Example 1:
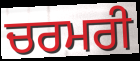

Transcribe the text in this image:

ਚਰਮਰੀ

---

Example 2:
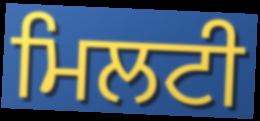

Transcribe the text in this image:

ਮਿਲਟੀ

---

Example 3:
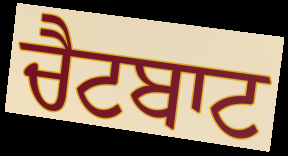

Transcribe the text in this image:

ਚੈਟਬਾਟ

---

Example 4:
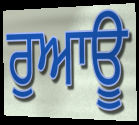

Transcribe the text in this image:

ਰੁਆਊ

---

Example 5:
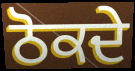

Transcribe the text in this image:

ਠੋਕਦੇ